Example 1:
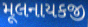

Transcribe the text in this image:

મૂલનાયકજી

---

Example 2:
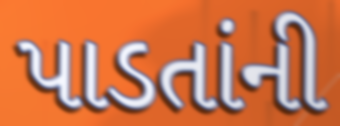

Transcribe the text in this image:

પાડતાંની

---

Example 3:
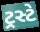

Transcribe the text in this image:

ટ્રસ્ટે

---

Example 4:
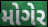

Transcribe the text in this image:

મોગેર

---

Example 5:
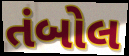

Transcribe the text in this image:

તંબોલ